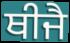
ਥੀਜੈ